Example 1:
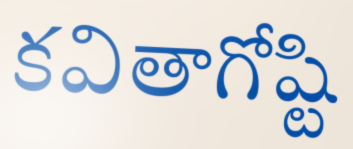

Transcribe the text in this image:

కవితాగోష్టి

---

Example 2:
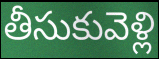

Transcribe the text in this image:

తీసుకువెళ్లి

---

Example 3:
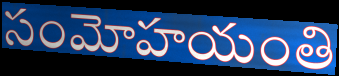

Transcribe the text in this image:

సంమోహయంతి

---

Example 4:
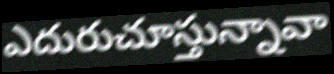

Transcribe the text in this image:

ఎదురుచూస్తున్నావా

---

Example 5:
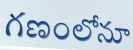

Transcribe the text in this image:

గణంలోనూ